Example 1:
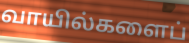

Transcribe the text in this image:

வாயில்களைப்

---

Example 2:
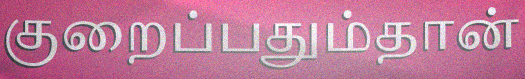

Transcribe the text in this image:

குறைப்பதும்தான்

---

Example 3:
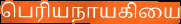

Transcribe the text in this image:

பெரியநாயகியை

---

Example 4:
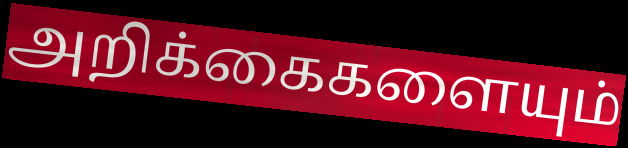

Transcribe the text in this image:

அறிக்கைகளையும்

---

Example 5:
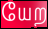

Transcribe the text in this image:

யேற